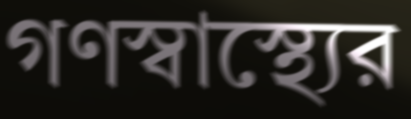
গণস্বাস্থ্যের